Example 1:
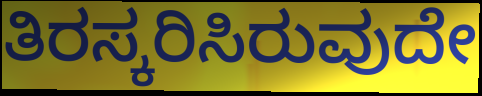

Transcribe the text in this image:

ತಿರಸ್ಕರಿಸಿರುವುದೇ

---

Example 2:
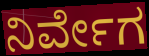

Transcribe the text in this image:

ನಿರ್ವೇಗ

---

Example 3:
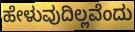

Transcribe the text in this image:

ಹೇಳುವುದಿಲ್ಲವೆಂದು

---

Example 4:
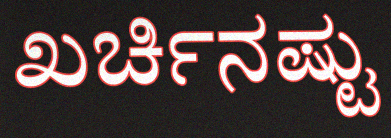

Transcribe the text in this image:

ಖರ್ಚಿನಷ್ಟು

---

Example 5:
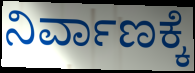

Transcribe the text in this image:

ನಿರ್ವಾಣಕ್ಕೆ